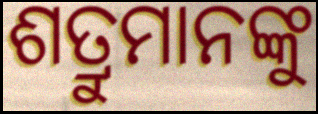
ଶତ୍ରୁମାନଙ୍କୁ